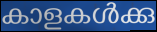
കാളകൾക്കു